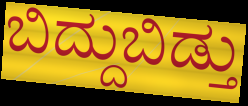
ಬಿದ್ದುಬಿಡ್ತು